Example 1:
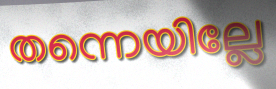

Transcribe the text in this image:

തന്നെയില്ലേ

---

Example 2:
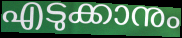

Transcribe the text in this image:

എടുക്കാനും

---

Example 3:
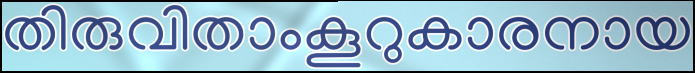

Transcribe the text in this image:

തിരുവിതാംകൂറുകാരനായ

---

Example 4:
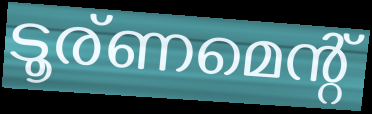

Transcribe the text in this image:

ടൂര്ണമെന്റ്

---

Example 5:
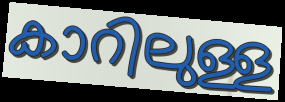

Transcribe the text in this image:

കാറിലുള്ള